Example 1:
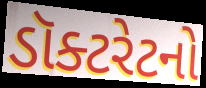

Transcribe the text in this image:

ડૉક્ટરેટનો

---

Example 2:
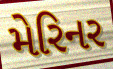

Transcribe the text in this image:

મેરિનર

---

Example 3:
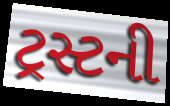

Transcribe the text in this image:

ટ્રસ્ટની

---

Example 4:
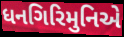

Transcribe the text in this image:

ધનગિરિમુનિએ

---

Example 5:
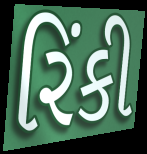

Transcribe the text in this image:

રિંકી